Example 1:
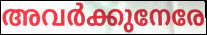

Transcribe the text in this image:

അവർക്കുനേരേ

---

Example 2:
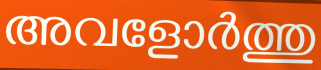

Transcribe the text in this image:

അവളോർത്തു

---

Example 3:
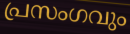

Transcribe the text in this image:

പ്രസംഗവും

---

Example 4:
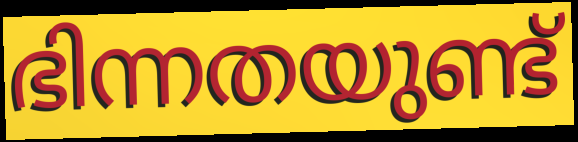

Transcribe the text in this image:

ഭിന്നതയുണ്ട്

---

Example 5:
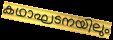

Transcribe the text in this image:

കഥാഘടനയിലും